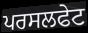
ਪਰਸਲਫੇਟ